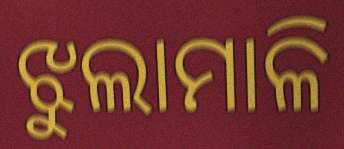
ଝୁଲାମାଳି